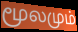
மூலமும்